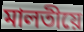
মালতীয়ে